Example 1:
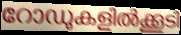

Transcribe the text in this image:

റോഡുകളിൽക്കൂടി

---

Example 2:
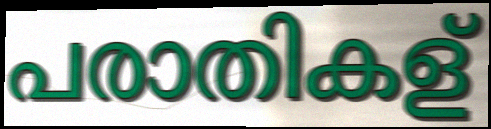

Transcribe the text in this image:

പരാതികള്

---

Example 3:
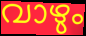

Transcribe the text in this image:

വാഴും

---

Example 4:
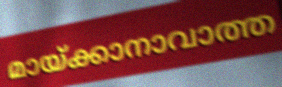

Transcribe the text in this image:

മായ്ക്കാനാവാത്ത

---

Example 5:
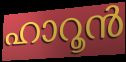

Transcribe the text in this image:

ഹാറൂൻ